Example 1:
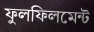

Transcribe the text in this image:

ফুলফিলমেন্ট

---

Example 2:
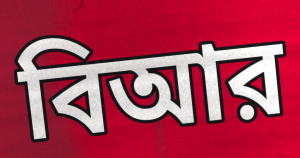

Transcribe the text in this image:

বিআর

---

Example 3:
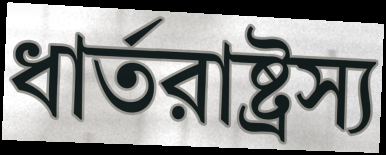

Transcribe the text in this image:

ধার্তরাষ্ট্রস্য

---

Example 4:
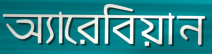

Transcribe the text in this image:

অ্যারেবিয়ান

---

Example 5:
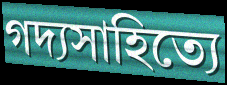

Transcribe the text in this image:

গদ্যসাহিত্যে